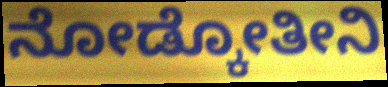
ನೋಡ್ಕೋತೀನಿ